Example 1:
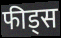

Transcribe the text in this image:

फीड्स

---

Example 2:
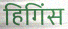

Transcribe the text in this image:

हिगिंस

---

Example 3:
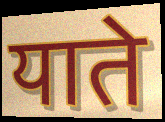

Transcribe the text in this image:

याते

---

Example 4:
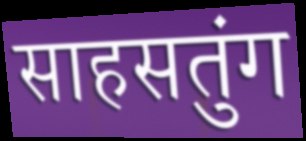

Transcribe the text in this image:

साहसतुंग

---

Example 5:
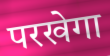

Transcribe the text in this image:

परखेगा